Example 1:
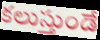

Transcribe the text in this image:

కలుస్తుండే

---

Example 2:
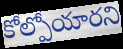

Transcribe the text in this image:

కోల్పోయారని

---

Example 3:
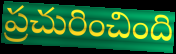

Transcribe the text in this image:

ప్రచురించింది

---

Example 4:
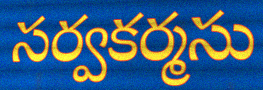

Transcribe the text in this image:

సర్వకర్మసు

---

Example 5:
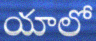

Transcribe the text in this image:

యాలో